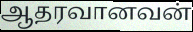
ஆதரவானவன்